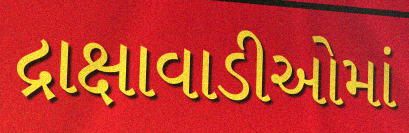
દ્રાક્ષાવાડીઓમાં